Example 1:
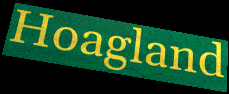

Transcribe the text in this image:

Hoagland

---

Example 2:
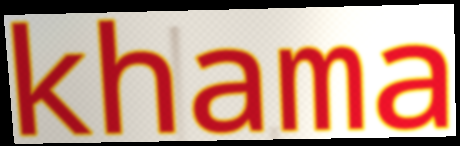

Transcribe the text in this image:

khama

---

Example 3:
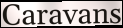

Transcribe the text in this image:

Caravans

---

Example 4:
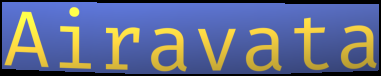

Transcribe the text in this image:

Airavata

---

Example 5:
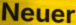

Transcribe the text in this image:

Neuer